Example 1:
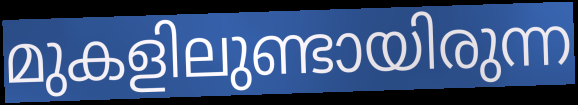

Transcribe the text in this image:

മുകളിലുണ്ടായിരുന്ന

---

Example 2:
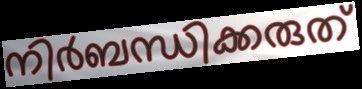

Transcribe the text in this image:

നിർബന്ധിക്കരുത്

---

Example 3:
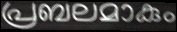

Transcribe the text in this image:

പ്രബലമാകും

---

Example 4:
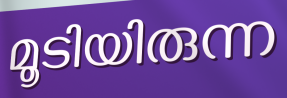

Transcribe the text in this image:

മൂടിയിരുന്ന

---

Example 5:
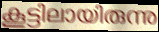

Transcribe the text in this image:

കൂട്ടിലായിരുന്നു